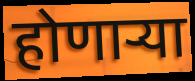
होणाऱ्या